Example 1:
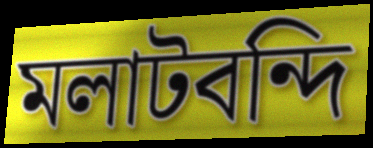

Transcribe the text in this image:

মলাটবন্দি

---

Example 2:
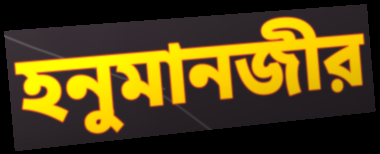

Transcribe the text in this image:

হনুমানজীর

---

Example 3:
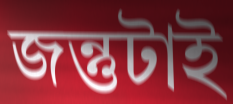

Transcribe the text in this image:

জন্তুটাই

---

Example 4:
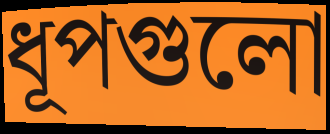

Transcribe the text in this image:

ধূপগুলো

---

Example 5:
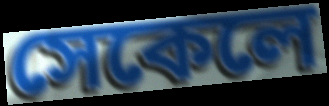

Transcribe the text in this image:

সেকেলে